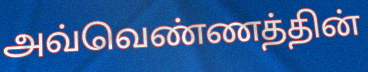
அவ்வெண்ணத்தின்